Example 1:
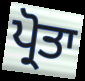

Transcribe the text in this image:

ਪ੍ਰੋਤਾ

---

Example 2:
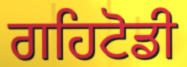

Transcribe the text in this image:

ਗਹਿਟੋਡੀ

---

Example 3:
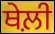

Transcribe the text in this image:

ਥੇਲ਼ੀ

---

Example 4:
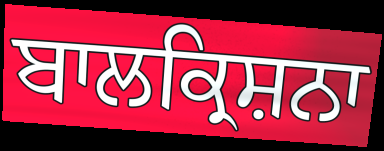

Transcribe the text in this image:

ਬਾਲਕ੍ਰਿਸ਼ਨਾ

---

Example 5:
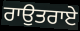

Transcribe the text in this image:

ਰਾਉਤਰਾਏ